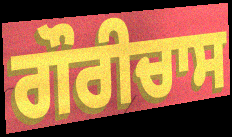
ਗੌਰੀਚਾਸ